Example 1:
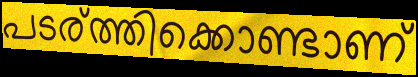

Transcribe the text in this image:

പടര്ത്തിക്കൊണ്ടാണ്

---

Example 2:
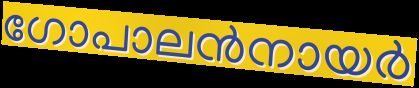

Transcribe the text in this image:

ഗോപാലൻനായർ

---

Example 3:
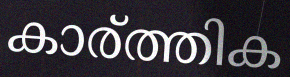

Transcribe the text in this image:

കാര്ത്തിക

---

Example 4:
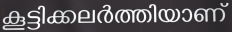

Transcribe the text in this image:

കൂട്ടിക്കലർത്തിയാണ്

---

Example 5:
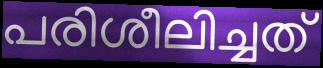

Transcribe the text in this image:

പരിശീലിച്ചത്